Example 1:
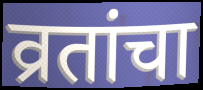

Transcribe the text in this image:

व्रतांचा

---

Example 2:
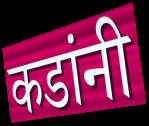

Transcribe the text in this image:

कडांनी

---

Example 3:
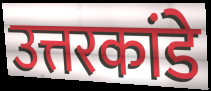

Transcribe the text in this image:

उत्तरकांडे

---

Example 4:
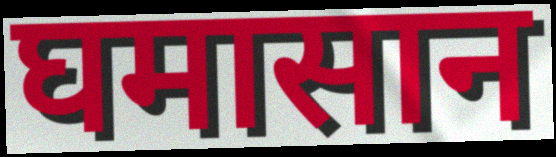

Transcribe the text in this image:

घमासान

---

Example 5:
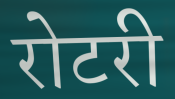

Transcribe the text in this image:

रोटरी